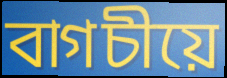
বাগচীয়ে